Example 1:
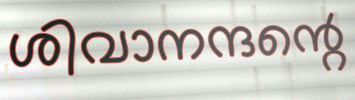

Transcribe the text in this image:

ശിവാനന്ദന്റെ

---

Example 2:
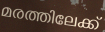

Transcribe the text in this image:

മരത്തിലേക്ക്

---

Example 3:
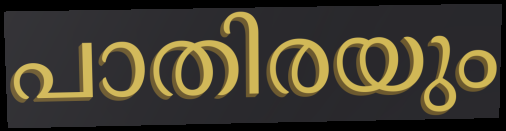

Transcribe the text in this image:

പാതിരയും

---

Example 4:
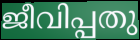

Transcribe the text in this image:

ജീവിപ്പതു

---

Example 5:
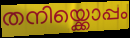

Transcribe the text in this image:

തനിയ്ക്കൊപ്പം